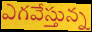
ఎగవేస్తున్న